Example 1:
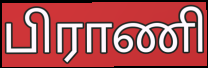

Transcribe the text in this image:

பிராணி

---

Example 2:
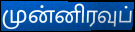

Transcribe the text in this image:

முன்னிரவுப்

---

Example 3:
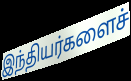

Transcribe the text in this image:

இந்தியர்களைச்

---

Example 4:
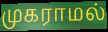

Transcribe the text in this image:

முகராமல்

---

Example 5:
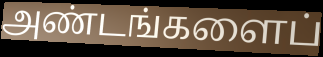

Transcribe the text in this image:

அண்டங்களைப்